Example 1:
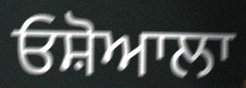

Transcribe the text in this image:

ਓਸ਼ੋਆਲਾ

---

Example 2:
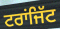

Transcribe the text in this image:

ਟਰਾਂਜਿੱਟ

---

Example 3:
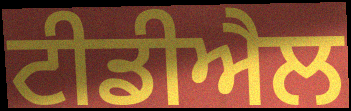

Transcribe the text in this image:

ਟੀਡੀਐਲ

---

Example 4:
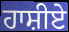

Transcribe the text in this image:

ਹਾਸ਼ੀਏ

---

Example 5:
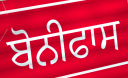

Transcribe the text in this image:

ਬੋਨੀਫਾਸ